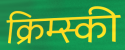
क्रिम्स्की